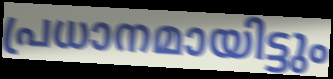
പ്രധാനമായിട്ടും